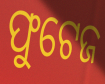
ଫୁଟେଜ